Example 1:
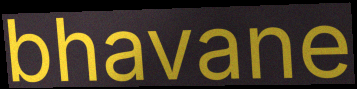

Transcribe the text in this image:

bhavane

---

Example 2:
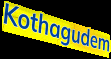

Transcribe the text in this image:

Kothagudem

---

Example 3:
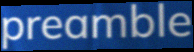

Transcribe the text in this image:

preamble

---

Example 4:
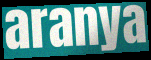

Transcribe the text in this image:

aranya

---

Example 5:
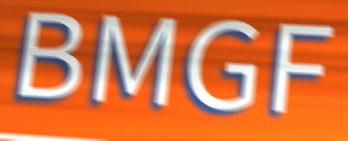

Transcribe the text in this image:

BMGF